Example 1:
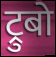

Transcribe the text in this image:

ट्रुबो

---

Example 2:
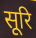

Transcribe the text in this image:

सूरि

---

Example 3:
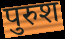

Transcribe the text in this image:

पुरुश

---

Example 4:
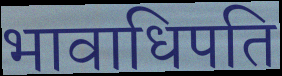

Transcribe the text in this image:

भावाधिपति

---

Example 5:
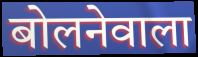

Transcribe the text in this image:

बोलनेवाला